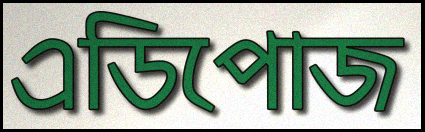
এডিপোজ